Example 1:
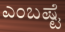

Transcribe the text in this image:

ಎಂಬಷ್ಟೆ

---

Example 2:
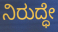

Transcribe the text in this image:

ನಿರುದ್ಧೇ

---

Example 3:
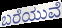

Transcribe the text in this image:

ಬರೆಯುವೆ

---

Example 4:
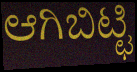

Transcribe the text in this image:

ಆಗಿಬಿಟ್ಟಿ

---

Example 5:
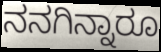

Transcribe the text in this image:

ನನಗಿನ್ನಾರೂ